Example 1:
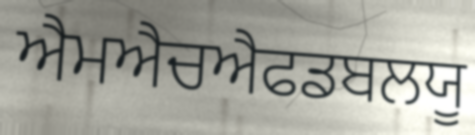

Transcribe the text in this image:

ਐਮਐਚਐਫਡਬਲਯੂ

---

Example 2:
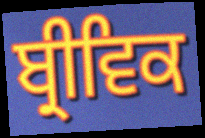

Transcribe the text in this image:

ਬ੍ਰੀਵਿਕ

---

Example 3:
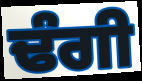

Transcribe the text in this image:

ਢੰਗੀ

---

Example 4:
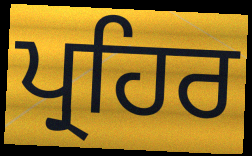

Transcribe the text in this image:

ਪ੍ਰਹਿਰ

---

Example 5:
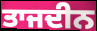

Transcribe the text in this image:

ਤਾਜਦੀਨ